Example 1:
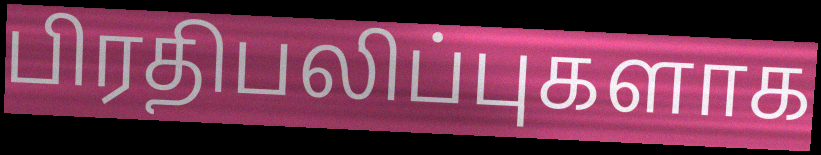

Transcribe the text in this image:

பிரதிபலிப்புகளாக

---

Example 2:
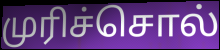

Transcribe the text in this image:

முரிச்சொல்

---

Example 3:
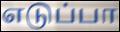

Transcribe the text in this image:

எடுப்பா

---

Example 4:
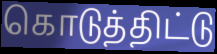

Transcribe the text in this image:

கொடுத்திட்டு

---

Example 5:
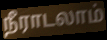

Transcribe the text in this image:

நீராடலாம்